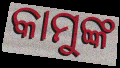
କାମୁଙ୍କ